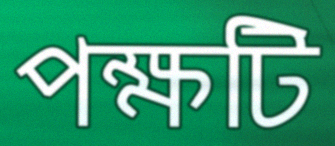
পক্ষটি